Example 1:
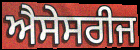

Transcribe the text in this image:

ਐਸੇਸਰੀਜ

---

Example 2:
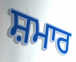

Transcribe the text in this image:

ਸ਼ਮਾਰ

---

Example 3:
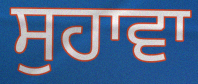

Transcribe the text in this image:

ਸੁਹਾਵਾ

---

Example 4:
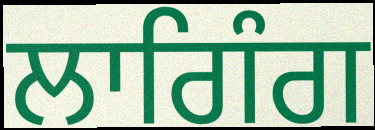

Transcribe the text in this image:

ਲਾਗਿੰਗ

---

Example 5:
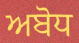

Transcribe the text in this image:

ਅਬੋਧ